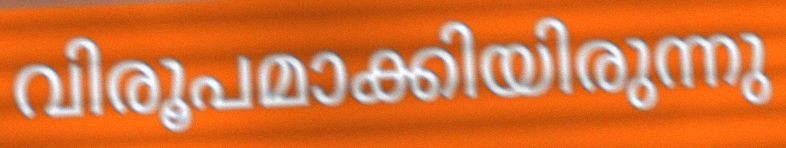
വിരൂപമാക്കിയിരുന്നു